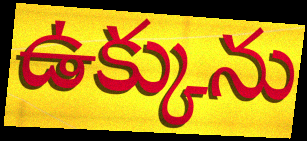
ఉక్కును